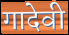
गादेवी